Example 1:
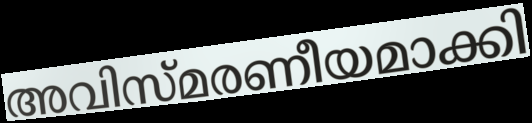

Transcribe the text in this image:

അവിസ്മരണീയമാക്കി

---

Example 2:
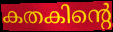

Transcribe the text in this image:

കതകിന്റെ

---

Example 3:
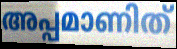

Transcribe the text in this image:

അപ്പമാണിത്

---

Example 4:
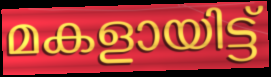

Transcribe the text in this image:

മകളായിട്ട്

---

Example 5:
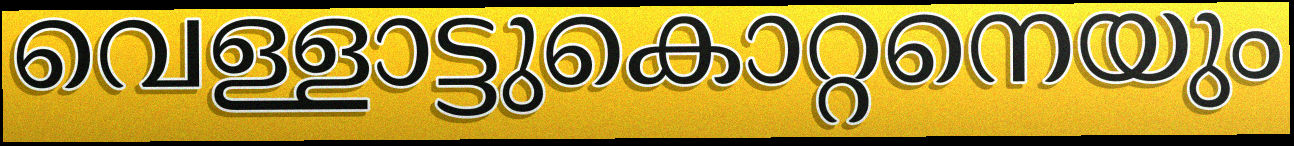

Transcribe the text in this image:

വെള്ളാട്ടുകൊറ്റനെയും